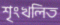
শৃংখলিত